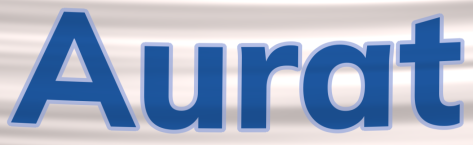
Aurat